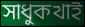
সাধুকথাই